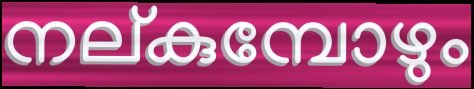
നല്കുമ്പോഴും